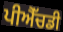
ਪੀਐੱਚਡੀ